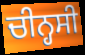
ਚੀਨ੍ਹ੍ਹਸੀ